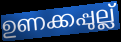
ഉണക്കപ്പുല്ല്